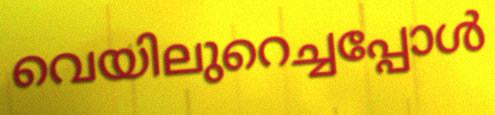
വെയിലുറെച്ചപ്പോൾ